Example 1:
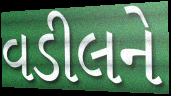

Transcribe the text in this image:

વડીલને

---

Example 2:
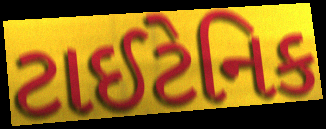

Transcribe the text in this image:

ટાઈટેનિક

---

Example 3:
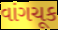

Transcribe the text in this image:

વાંગચૂક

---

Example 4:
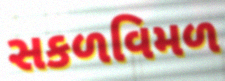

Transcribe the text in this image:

સકળવિમળ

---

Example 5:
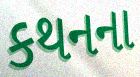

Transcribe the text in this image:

કથનના